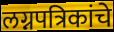
लग्नपत्रिकांचे